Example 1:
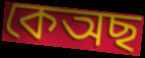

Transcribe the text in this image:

কেঅছ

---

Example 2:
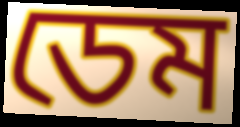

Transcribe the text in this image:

ডেম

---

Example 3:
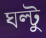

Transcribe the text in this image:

ঘল্টু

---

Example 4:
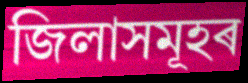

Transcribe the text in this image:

জিলাসমূহৰ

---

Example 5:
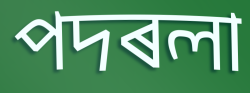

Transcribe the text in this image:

পদৰলা